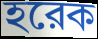
হরেক